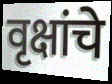
वृक्षांचे